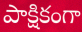
పాక్షికంగా